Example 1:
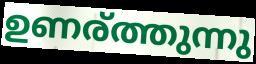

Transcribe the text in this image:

ഉണര്ത്തുന്നു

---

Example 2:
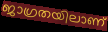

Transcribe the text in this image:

ജാഗ്രതയിലാണ്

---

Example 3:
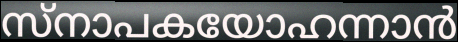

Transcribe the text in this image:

സ്നാപകയോഹന്നാൻ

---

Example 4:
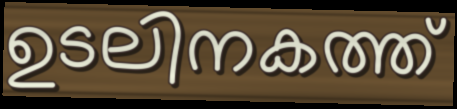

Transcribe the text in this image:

ഉടലിനകത്ത്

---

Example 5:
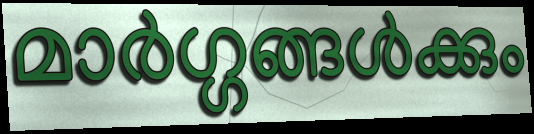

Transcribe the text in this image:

മാർഗ്ഗങ്ങൾക്കും